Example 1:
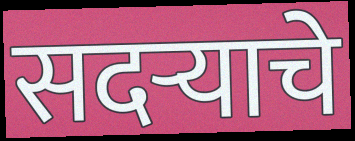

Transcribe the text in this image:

सदऱ्याचे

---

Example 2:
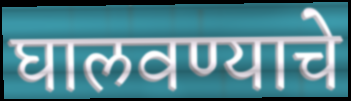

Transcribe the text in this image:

घालवण्याचे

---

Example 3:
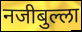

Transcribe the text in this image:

नजीबुल्ला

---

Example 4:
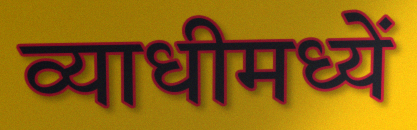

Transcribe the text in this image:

व्याधीमध्यें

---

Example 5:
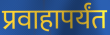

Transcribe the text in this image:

प्रवाहापर्यंत